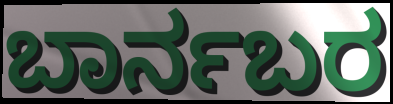
ಬಾರ್ನಬರ